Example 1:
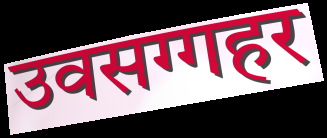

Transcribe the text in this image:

उवसग्गहर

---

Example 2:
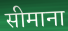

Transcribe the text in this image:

सीमाना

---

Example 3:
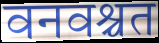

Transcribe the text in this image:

वनवश्चत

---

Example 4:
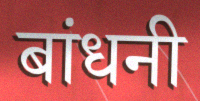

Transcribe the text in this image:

बांधनी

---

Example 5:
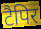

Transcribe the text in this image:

टैपिर